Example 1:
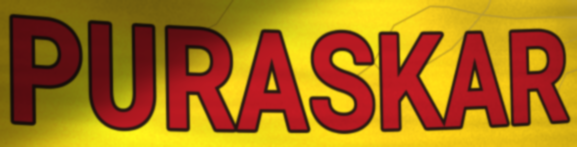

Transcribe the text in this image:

PURASKAR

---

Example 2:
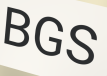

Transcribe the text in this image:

BGS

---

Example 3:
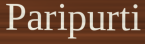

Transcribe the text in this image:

Paripurti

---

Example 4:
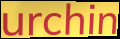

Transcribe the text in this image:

urchin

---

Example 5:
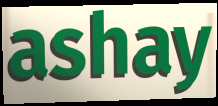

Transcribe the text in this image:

ashay